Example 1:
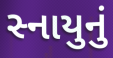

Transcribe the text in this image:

સ્નાયુનું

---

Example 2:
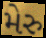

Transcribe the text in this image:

મેરુ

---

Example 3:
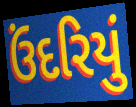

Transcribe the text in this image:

ઉંદરિયું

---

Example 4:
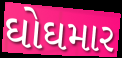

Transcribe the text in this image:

ઘોઘમાર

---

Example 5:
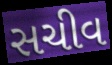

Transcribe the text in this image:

સચીવ